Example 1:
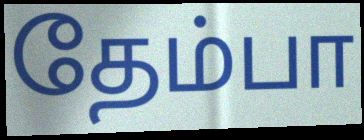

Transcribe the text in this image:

தேம்பா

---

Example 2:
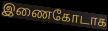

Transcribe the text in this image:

இணைகோடாக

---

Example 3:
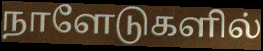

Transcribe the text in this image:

நாளேடுகளில்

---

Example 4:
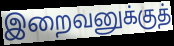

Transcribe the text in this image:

இறைவனுக்குத்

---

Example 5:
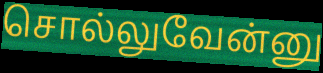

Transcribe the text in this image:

சொல்லுவேன்னு